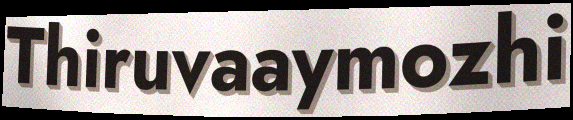
Thiruvaaymozhi